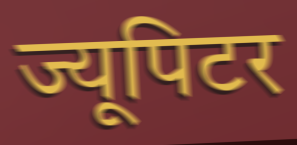
ज्यूपिटर